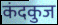
कंदकुज